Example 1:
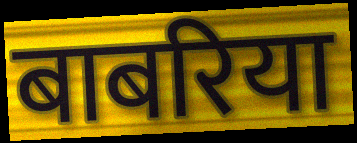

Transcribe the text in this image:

बाबरिया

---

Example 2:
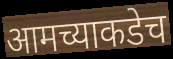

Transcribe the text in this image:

आमच्याकडेच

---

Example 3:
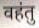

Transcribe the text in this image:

वहंतु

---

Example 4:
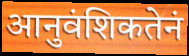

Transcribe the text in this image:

आनुवंशिकतेनं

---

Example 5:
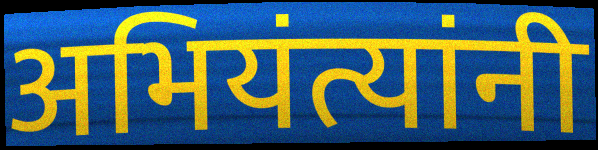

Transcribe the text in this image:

अभियंत्यांनी